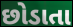
છોડાતા